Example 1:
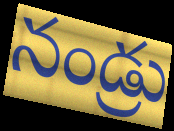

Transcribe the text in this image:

నండ్రు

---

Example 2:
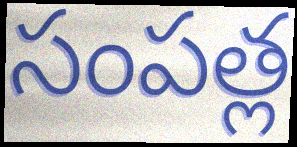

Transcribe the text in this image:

సంపత్ల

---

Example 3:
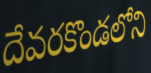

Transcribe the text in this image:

దేవరకొండలోని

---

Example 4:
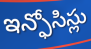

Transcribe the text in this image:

ఇన్ఫోసిస్లు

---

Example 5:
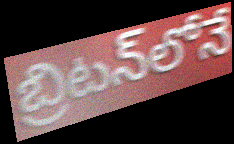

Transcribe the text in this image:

బ్రిటన్‌లోనే